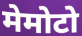
मेमोटो